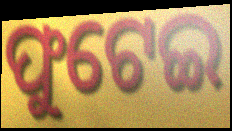
ଫୁଟେଇ